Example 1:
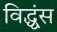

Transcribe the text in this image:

विद्ध्वंस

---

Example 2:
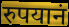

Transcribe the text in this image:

रुपयानं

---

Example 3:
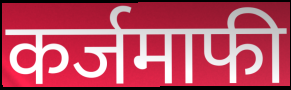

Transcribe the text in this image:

कर्जमाफी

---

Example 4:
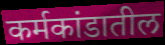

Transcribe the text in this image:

कर्मकांडातील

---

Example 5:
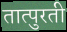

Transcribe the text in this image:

तात्पुरती